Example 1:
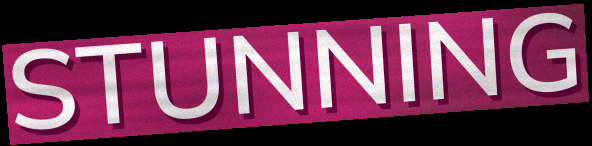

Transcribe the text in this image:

STUNNING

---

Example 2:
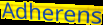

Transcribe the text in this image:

Adherens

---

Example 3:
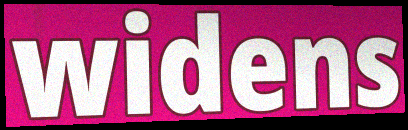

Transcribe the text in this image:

widens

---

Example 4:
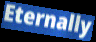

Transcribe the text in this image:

Eternally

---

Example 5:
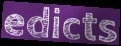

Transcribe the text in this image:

edicts